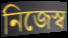
নিজেস্ব